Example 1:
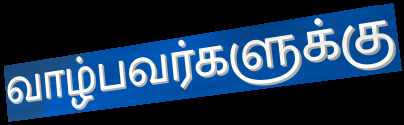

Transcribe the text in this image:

வாழ்பவர்களுக்கு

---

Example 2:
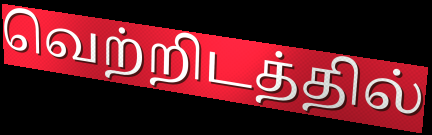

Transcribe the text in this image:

வெற்றிடத்தில்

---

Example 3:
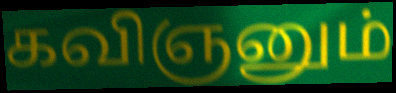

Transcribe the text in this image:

கவிஞனும்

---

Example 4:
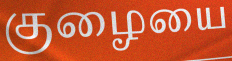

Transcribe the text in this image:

குழையை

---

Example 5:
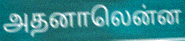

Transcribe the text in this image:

அதனாலென்ன